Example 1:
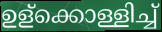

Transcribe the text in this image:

ഉള്ക്കൊള്ളിച്ച്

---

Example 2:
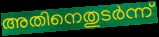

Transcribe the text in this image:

അതിനെതുടർന്ന്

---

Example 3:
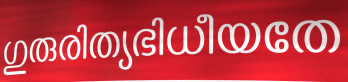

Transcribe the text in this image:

ഗുരുരിത്യഭിധീയതേ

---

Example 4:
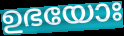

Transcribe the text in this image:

ഉഭയോഃ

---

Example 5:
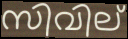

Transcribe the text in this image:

സിവില്